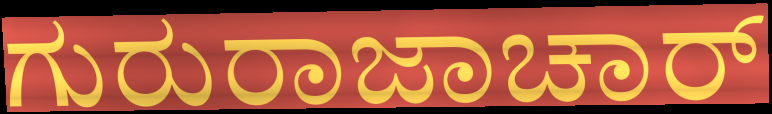
ಗುರುರಾಜಾಚಾರ್